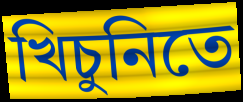
খিচুনিতে